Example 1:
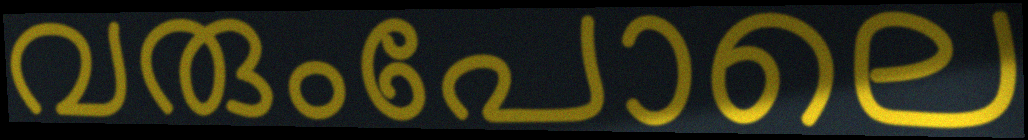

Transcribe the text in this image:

വരുംപോലെ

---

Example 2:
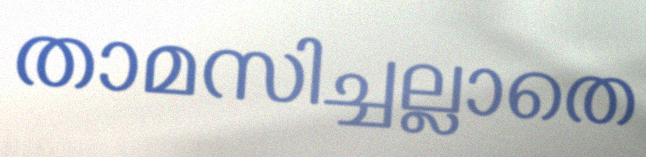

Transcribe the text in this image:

താമസിച്ചല്ലാതെ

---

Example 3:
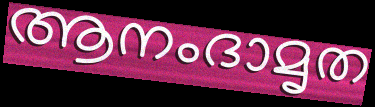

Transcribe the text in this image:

ആനംദാമൃത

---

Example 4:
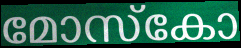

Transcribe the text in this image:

മോസ്‌കോ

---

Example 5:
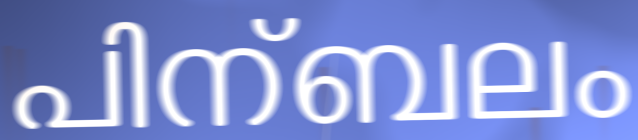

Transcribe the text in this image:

പിന്ബലം